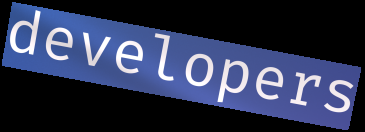
developers